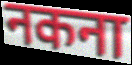
नकना